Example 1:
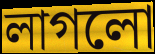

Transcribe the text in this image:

লাগলো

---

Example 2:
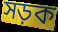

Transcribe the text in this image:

সড়ক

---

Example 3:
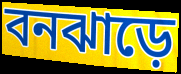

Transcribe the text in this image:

বনঝাড়ে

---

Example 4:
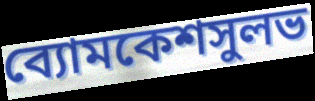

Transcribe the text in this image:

ব্যোমকেশসুলভ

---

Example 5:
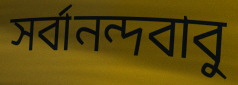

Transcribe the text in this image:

সর্বানন্দবাবু